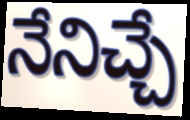
నేనిచ్చే